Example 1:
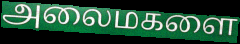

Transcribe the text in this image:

அலைமகளை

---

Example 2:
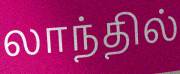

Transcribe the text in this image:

லாந்தில்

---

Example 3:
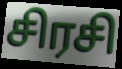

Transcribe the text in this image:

சிரசி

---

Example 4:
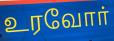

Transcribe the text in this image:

உரவோர்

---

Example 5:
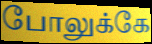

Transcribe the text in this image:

போலுக்கே